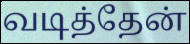
வடித்தேன்